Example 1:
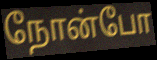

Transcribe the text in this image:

நோன்போ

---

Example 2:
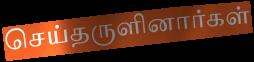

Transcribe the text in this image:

செய்தருளினார்கள்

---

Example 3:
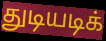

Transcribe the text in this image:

துடியடிக்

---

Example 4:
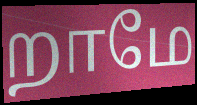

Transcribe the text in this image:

றாமே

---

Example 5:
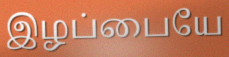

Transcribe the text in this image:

இழப்பையே